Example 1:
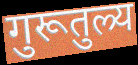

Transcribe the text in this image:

गुरूतुल्य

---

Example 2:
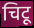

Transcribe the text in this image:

चिटू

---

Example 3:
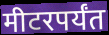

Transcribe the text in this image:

मीटरपर्यंत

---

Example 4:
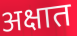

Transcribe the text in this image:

अक्षात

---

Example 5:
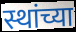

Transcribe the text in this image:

स्थांच्या